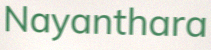
Nayanthara